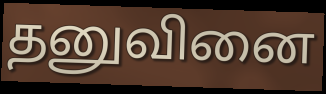
தனுவினை